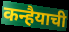
कन्हैयाची